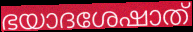
ഭയാദശേഷാത്